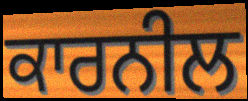
ਕਾਰਨੀਲ